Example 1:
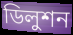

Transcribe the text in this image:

ডিলুশন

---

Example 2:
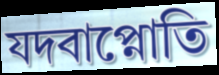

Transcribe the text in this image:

যদবাপ্নোতি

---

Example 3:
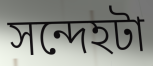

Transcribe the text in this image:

সন্দেহটা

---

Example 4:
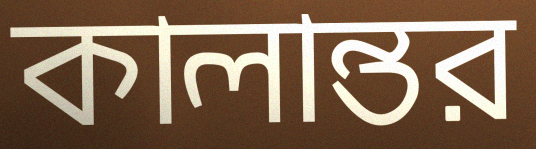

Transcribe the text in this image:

কালান্তর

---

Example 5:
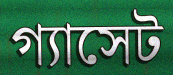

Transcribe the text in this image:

গ্যাসেট